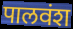
पालवंश